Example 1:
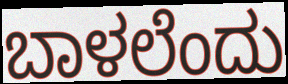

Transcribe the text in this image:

ಬಾಳಲೆಂದು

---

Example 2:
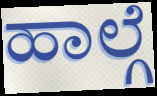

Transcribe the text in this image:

ಹಾಲ್ಗೆ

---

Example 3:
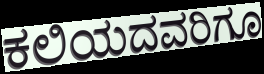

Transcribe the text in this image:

ಕಲಿಯದವರಿಗೂ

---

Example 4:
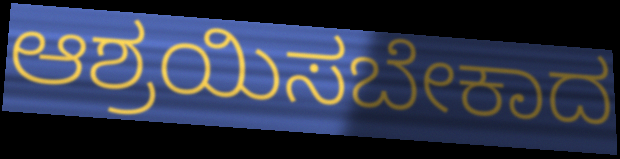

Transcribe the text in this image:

ಆಶ್ರಯಿಸಬೇಕಾದ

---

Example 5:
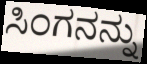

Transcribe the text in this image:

ಸಿಂಗನನ್ನು